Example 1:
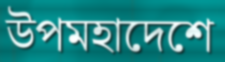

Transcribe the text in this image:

উপমহাদেশে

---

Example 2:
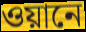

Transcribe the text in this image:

ওয়ানে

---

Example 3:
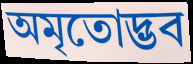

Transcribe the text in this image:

অমৃতোদ্ভব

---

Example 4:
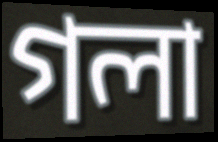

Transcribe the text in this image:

গলা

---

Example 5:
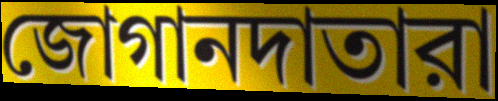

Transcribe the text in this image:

জোগানদাতারা